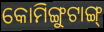
କୋମିଙ୍ଗୁଟାଙ୍ଗ୍